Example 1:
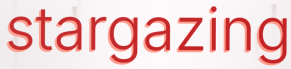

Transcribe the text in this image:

stargazing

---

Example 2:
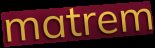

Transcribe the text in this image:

matrem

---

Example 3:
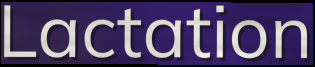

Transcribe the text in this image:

Lactation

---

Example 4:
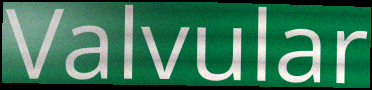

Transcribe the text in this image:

Valvular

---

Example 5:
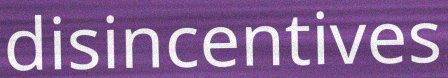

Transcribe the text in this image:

disincentives